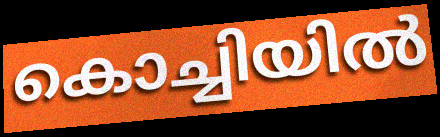
കൊച്ചിയിൽ